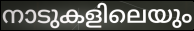
നാടുകളിലെയും